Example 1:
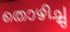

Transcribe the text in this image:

തൊഴിച്ചു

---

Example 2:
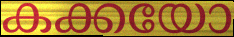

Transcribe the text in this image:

കക്കയോ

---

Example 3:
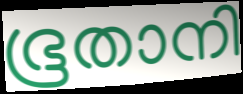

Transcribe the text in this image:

ഭൂതാനി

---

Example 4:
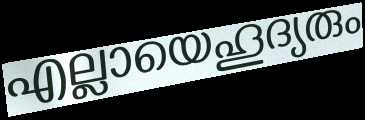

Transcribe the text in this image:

എല്ലായെഹൂദ്യരും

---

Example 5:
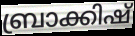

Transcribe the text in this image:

ബ്രാക്കിഷ്